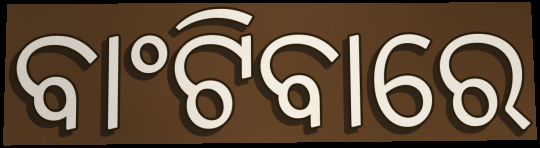
ବାଂଟିବାରେ